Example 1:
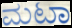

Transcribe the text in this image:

ಮಟಾ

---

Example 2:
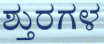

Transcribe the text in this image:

ಶ್ತುರಗಳ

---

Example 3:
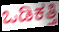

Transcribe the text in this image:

ಒಡಿಕತ್ತಿ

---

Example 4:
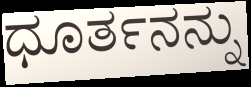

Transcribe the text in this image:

ಧೂರ್ತನನ್ನು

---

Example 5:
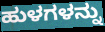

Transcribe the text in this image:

ಹುಳಗಳನ್ನು